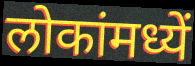
लोकांमध्यें